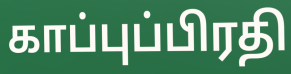
காப்புப்பிரதி